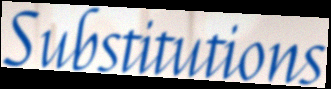
Substitutions